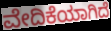
ವೇದಿಕೆಯಾಗಿದೆ